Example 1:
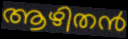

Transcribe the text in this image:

ആഴിതൻ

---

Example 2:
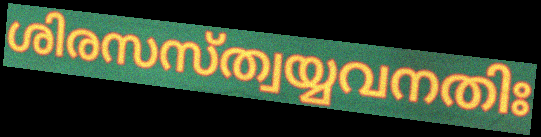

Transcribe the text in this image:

ശിരസസ്ത്വയ്യവനതിഃ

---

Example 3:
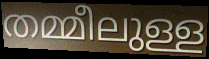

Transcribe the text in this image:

തമ്മീലുള്ള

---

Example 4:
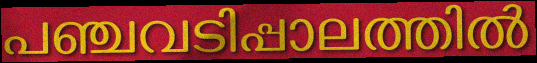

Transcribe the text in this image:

പഞ്ചവടിപ്പാലത്തിൽ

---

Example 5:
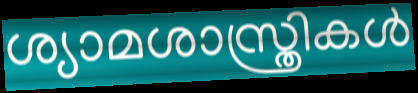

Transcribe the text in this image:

ശ്യാമശാസ്ത്രികൾ